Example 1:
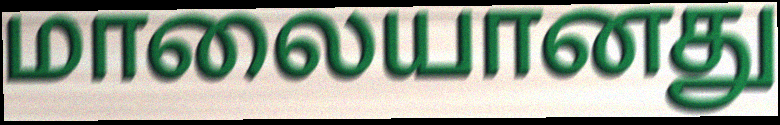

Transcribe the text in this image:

மாலையானது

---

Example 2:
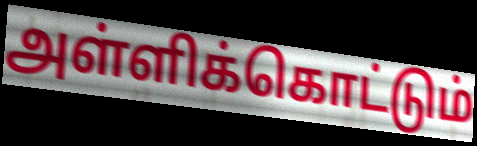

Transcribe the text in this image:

அள்ளிக்கொட்டும்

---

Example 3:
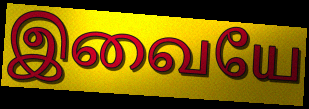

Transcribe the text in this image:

இவையே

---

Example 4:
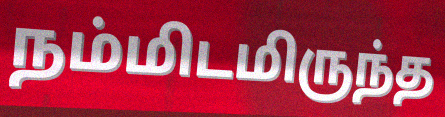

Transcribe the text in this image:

நம்மிடமிருந்த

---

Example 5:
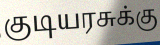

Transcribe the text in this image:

குடியரசுக்கு